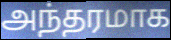
அந்தரமாக